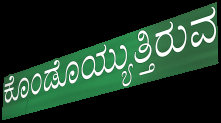
ಕೊಂಡೊಯ್ಯುತ್ತಿರುವ